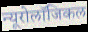
न्यूरोलॉजिकल